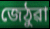
জেঠুৱা